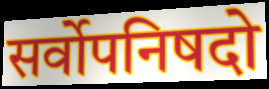
सर्वोपनिषदो